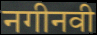
नगीनवी